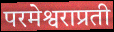
परमेश्वराप्रती